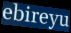
ebireyu